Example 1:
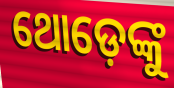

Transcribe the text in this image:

ଥୋଡ଼େଙ୍କୁ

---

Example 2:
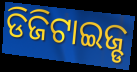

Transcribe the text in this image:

ଡିଜିଟାଇଜ୍ଡ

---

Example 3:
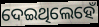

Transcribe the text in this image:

ଦେଇଥିଲେହେଁ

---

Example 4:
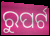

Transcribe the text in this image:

ରୁପର୍ଟ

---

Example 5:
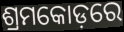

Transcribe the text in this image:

ଶ୍ରମକୋଡ଼ରେ